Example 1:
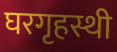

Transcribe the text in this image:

घरगृहस्थी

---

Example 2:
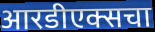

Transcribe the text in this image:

आरडीएक्सचा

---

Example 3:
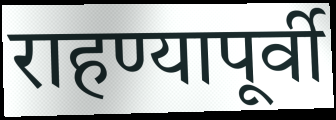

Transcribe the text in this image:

राहण्यापूर्वी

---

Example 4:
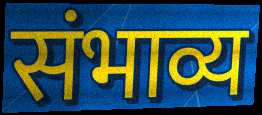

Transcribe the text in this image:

संभाव्य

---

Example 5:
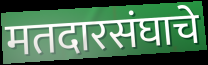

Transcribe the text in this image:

मतदारसंघाचे